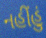
નહીંહું